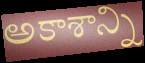
అకాశాన్ని